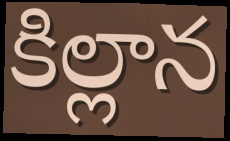
కిల్లాన